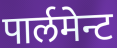
पार्लमेन्ट